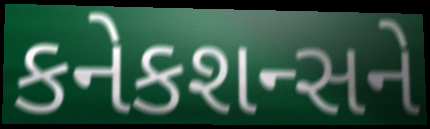
કનેકશન્સને